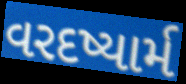
વરદષ્યાર્મ